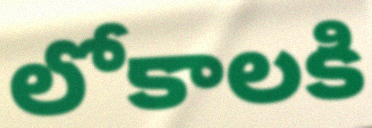
లోకాలకి